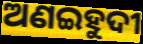
ଅଣଇହୁଦୀ